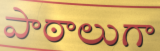
పాఠాలుగా